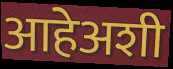
आहेअशी